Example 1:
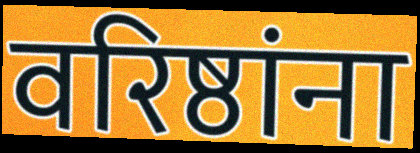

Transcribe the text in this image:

वरिष्ठांना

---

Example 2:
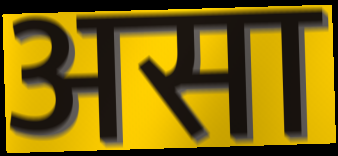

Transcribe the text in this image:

असा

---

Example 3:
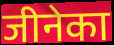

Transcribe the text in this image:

जीनेका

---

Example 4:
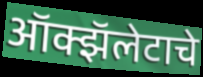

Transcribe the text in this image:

ऑक्झॅलेटाचे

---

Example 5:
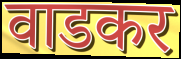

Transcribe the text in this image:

वाडकर